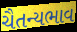
ચૈતન્યભાવ